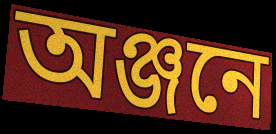
অঞ্জনে